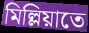
মিল্লিয়াতে